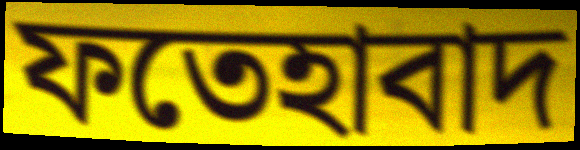
ফতেহাবাদ